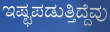
ಇಷ್ಟಪಡುತ್ತಿದ್ದೆವು